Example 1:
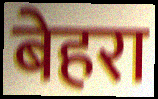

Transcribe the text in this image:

बेहरा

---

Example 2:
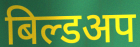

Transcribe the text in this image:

बिल्डअप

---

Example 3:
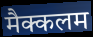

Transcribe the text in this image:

मैक्कलम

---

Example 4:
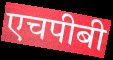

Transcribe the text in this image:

एचपीबी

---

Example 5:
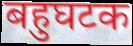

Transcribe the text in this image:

बहुघटक